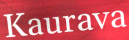
Kaurava